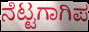
ನೆಟ್ಟಗಾಗಿಪ